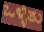
ಒಳ್ಳಿತು